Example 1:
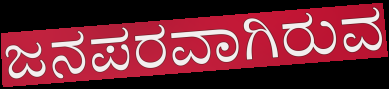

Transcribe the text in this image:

ಜನಪರವಾಗಿರುವ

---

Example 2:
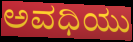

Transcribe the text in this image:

ಅವಧಿಯು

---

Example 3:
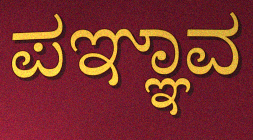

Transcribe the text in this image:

ಪಞ್ಞಾವ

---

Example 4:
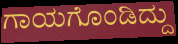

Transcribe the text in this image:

ಗಾಯಗೊಂಡಿದ್ದು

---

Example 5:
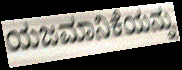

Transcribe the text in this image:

ಯಜಮಾನಿಕೆಯನ್ನು